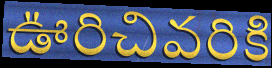
ఊరిచివరికి